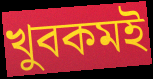
খুবকমই